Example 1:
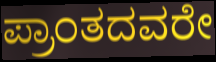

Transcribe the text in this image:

ಪ್ರಾಂತದವರೇ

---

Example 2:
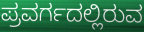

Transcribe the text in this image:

ಪ್ರವರ್ಗದಲ್ಲಿರುವ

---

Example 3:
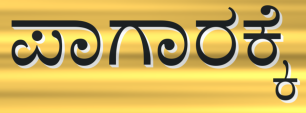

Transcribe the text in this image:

ಪಾಗಾರಕ್ಕೆ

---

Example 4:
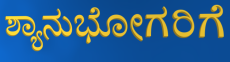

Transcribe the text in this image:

ಶ್ಯಾನುಭೋಗರಿಗೆ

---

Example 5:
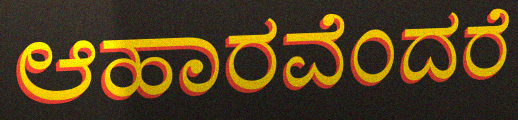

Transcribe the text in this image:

ಆಹಾರವೆಂದರೆ